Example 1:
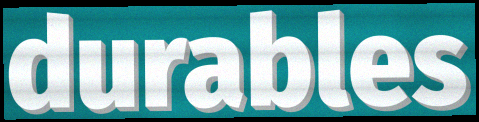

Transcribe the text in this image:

durables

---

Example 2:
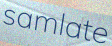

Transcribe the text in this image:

samlate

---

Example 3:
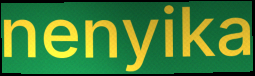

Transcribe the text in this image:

nenyika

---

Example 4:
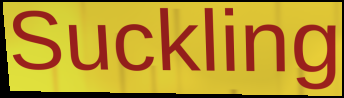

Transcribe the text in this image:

Suckling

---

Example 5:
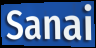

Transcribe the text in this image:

Sanai